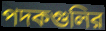
পদকগুলির